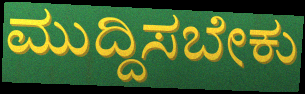
ಮುದ್ದಿಸಬೇಕು